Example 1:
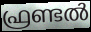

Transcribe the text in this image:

ഫ്രണ്ടൽ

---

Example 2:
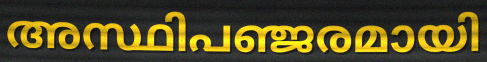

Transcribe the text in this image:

അസ്ഥിപഞ്ജരമായി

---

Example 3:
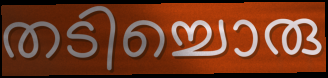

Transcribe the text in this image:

തടിച്ചൊരു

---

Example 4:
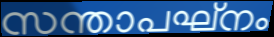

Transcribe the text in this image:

സന്താപഘ്നം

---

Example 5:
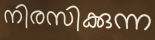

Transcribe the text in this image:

നിരസിക്കുന്ന